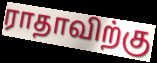
ராதாவிற்கு